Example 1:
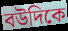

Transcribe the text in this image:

বউদিকে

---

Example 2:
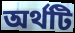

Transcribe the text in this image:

অর্থটি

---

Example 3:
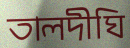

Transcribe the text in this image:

তালদীঘি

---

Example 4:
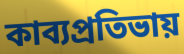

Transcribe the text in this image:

কাব্যপ্রতিভায়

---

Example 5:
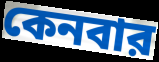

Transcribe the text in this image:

কেনবার